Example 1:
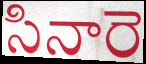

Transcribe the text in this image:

సినారె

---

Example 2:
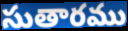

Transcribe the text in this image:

సుతారము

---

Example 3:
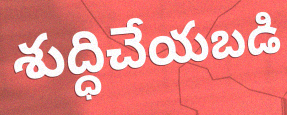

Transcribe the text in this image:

శుద్ధిచేయబడి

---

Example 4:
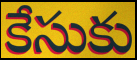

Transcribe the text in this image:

కేసుకు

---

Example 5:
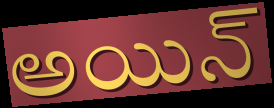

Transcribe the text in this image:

అయిన్